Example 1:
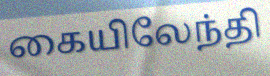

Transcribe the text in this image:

கையிலேந்தி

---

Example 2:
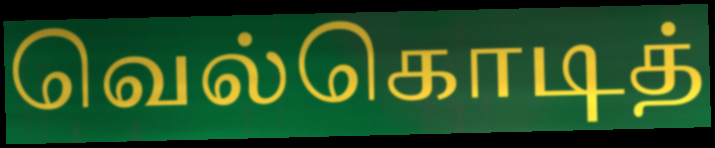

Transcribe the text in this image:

வெல்கொடித்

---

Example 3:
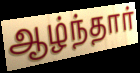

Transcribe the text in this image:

ஆழ்ந்தார்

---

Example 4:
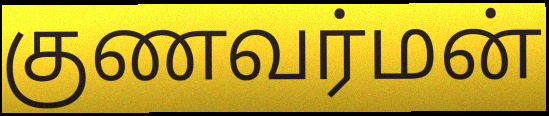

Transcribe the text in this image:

குணவர்மன்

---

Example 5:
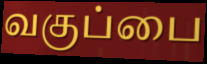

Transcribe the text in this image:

வகுப்பை